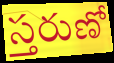
స్తరుణో